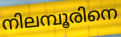
നിലമ്പൂരിനെ